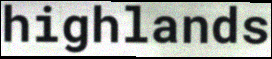
highlands